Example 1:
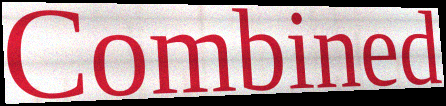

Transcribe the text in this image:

Combined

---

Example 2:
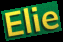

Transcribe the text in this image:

Elie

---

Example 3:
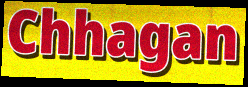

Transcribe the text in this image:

Chhagan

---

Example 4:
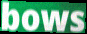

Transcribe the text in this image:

bows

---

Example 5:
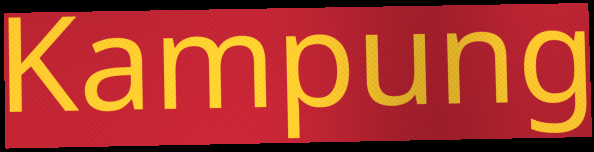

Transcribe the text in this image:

Kampung